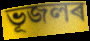
ভূজলৰ